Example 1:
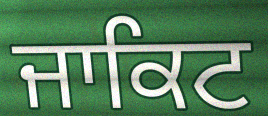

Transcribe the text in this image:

ਜਾਕਿਟ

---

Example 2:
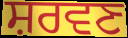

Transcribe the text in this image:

ਸ਼ਰਵਣ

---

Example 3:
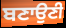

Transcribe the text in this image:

ਬਣਾਉਣੀ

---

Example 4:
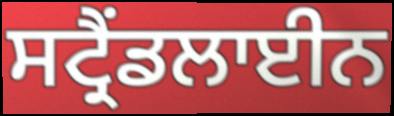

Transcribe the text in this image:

ਸਟ੍ਰੈਂਡਲਾਈਨ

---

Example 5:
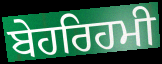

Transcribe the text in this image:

ਬੇਹਰਿਹਮੀ